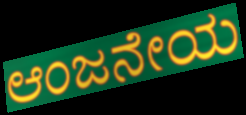
ಆಂಜನೇಯ